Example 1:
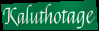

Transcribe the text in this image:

Kaluthotage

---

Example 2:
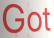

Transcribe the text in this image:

Got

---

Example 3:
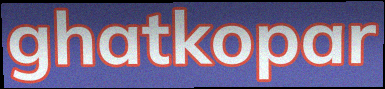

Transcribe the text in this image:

ghatkopar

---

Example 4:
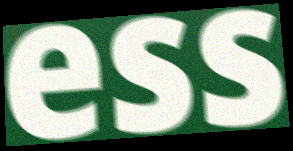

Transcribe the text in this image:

ess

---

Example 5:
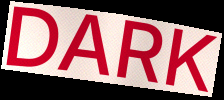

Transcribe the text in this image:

DARK